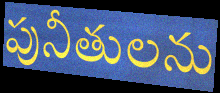
పునీతులను